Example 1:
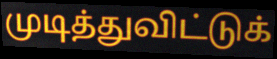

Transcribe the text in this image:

முடித்துவிட்டுக்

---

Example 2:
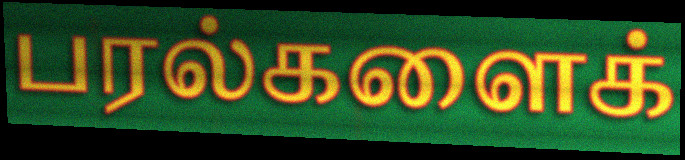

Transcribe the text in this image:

பரல்களைக்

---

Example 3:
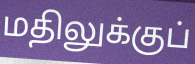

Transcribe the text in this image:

மதிலுக்குப்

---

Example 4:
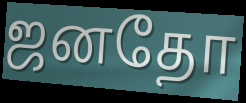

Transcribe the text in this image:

ஜனதோ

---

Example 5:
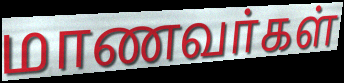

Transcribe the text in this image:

மாணவர்கள்